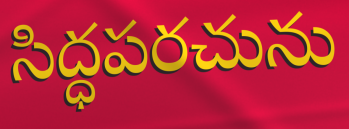
సిద్ధపరచును